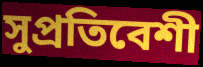
সুপ্রতিবেশী